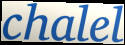
chalel